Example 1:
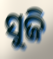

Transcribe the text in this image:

ସୁଜି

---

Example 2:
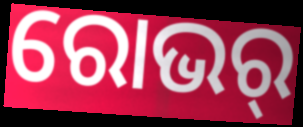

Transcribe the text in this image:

ରୋଭର୍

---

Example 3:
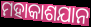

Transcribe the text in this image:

ମହାକାଶଯାନ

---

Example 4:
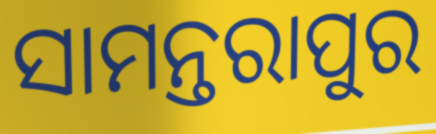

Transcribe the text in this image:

ସାମନ୍ତରାପୁର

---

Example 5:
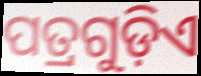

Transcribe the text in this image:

ପତ୍ରଗୁଡ଼ିଏ